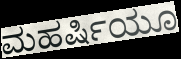
ಮಹರ್ಷಿಯೂ